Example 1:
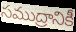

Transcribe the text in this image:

సముద్రానికీ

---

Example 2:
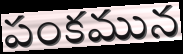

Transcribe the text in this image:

పంకమున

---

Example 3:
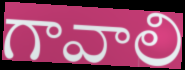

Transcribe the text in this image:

గావాలి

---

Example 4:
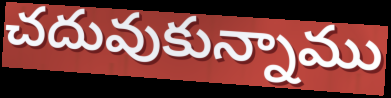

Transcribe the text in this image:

చదువుకున్నాము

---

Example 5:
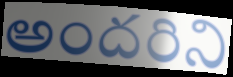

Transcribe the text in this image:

అందరిని